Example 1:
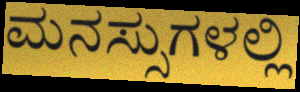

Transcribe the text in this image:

ಮನಸ್ಸುಗಳಲ್ಲಿ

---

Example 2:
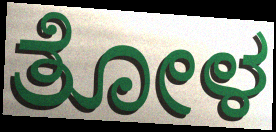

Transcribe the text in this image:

ತೋಳ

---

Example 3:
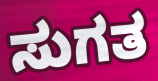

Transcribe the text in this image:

ಸುಗತ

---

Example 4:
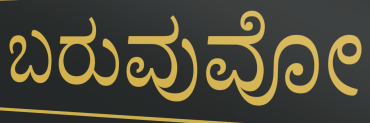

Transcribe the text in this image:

ಬರುವುವೋ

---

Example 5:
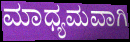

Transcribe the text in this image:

ಮಾಧ್ಯಮವಾಗಿ